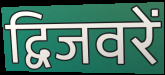
द्विजवरें